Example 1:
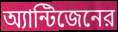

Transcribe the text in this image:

অ্যান্টিজেনের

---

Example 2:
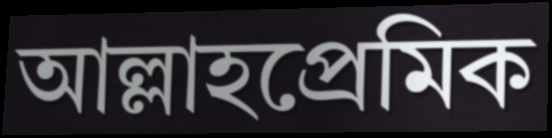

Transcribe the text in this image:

আল্লাহপ্রেমিক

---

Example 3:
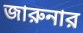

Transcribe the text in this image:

জারুনার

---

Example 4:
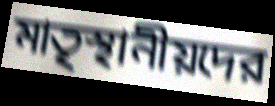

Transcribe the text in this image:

মাতৃস্থানীয়দের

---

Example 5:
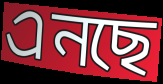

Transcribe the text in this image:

এনছে